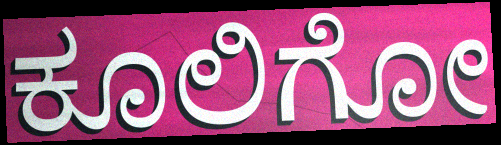
ಕೂಲಿಗೋ